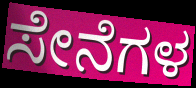
ಸೇನೆಗಳ